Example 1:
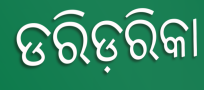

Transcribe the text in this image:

ଡରିଡ଼ରିକା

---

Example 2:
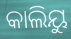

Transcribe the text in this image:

କାଲିୟୁ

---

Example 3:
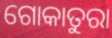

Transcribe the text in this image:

ଗୋକାତୁରା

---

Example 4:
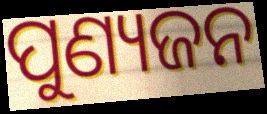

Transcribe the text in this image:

ପୁଣ୍ୟଜନ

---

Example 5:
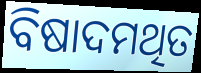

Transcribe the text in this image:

ବିଷାଦମଥିତ